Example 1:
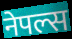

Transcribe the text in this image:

नेपल्स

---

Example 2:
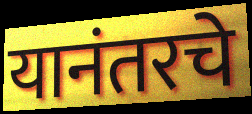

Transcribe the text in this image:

यानंतरचे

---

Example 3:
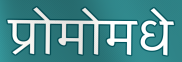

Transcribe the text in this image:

प्रोमोमधे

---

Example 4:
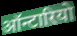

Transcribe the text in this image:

ऑन्टारियो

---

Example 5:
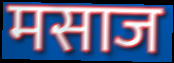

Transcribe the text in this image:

मसाज